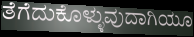
ತೆಗೆದುಕೊಳ್ಳುವುದಾಗಿಯೂ